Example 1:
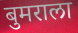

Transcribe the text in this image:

बुमराला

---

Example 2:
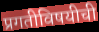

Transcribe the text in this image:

प्रगतीविषयीची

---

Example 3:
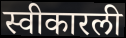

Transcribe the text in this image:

स्वीकारली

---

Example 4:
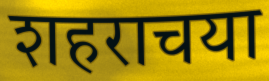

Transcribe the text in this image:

शहराचया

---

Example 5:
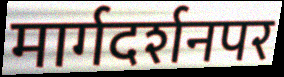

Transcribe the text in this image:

मार्गदर्शनपर